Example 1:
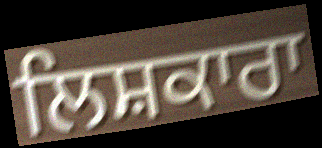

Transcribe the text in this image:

ਲਿਸ਼ਕਾਰਾ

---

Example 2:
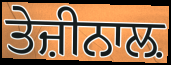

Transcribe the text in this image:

ਤੇਜ਼ੀਨਾਲ਼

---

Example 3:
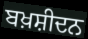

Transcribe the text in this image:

ਬਖ਼ਸ਼ੀਦਨ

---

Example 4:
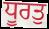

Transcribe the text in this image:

ਧੂਰਤੁ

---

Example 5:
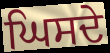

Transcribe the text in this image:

ਘਿਸਦੇ